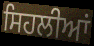
ਸਿਹਲੀਆਂ